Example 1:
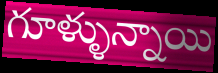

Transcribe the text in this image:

గూళ్ళున్నాయి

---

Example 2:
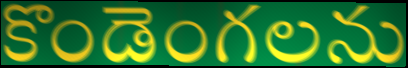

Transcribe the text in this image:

కొండెంగలను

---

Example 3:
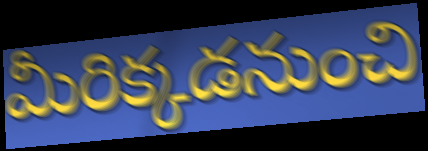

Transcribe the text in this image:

మీరిక్కడనుంచి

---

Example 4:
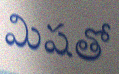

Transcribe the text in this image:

మిషతో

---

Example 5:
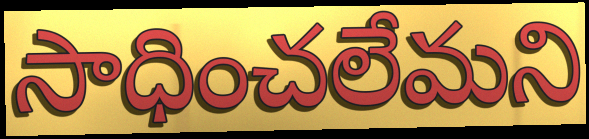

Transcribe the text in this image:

సాధించలేమని